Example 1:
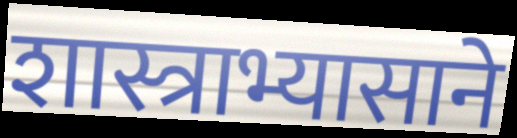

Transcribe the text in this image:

शास्त्राभ्यासाने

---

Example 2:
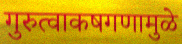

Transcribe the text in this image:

गुरुत्वाकषगणामुळे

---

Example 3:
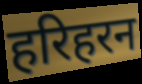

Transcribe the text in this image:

हरिहरन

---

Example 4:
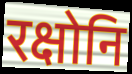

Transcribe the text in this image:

रक्षोनि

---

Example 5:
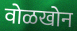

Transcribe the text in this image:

वोळखोन